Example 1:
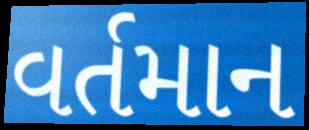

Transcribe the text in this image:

વર્તમાન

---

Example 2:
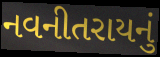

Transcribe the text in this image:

નવનીતરાયનું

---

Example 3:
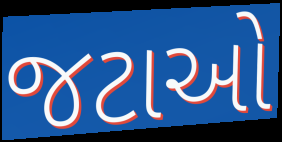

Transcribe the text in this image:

જટાઓ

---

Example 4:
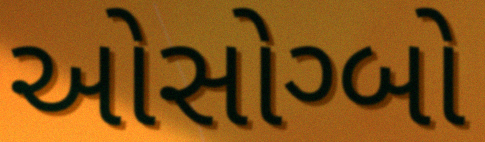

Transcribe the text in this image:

ઓસોગ્બો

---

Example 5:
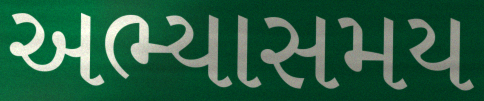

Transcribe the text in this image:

અભ્યાસમય